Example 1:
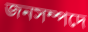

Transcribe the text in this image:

জনসম্পদে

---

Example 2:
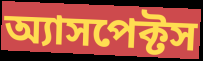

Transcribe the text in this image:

অ্যাসপেক্টস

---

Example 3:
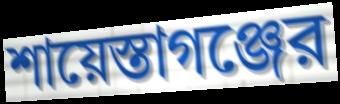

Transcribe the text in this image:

শায়েস্তাগঞ্জের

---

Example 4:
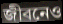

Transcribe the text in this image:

জীবনেও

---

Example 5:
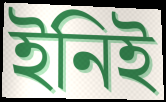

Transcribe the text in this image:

ইনিই